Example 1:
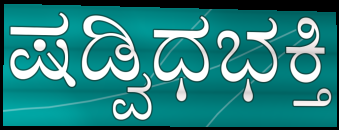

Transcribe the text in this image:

ಷಡ್ವಿಧಭಕ್ತಿ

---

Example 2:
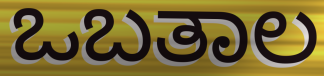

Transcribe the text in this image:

ಒಬತಾಲ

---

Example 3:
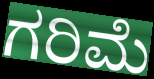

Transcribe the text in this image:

ಗರಿಮೆ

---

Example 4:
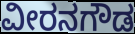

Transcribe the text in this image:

ವೀರನಗೌಡ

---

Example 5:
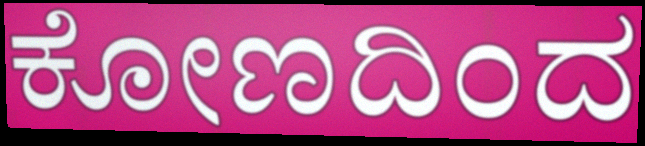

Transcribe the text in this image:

ಕೋಣದಿಂದ